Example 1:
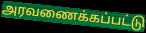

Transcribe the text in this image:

அரவணைக்கப்பட்டு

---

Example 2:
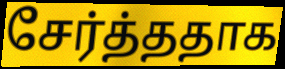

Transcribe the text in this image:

சேர்த்ததாக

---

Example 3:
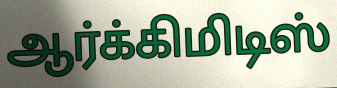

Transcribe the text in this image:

ஆர்க்கிமிடிஸ்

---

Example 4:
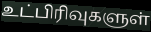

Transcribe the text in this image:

உட்பிரிவுகளுள்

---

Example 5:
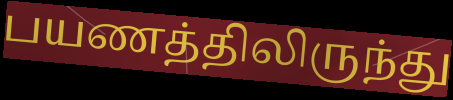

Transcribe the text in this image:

பயணத்திலிருந்து